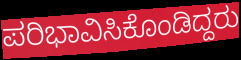
ಪರಿಭಾವಿಸಿಕೊಂಡಿದ್ದರು